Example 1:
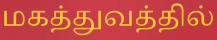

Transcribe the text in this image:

மகத்துவத்தில்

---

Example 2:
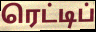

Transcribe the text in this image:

ரெட்டிப்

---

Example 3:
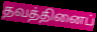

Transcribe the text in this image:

தவத்தினைப்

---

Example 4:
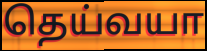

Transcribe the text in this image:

தெய்வயா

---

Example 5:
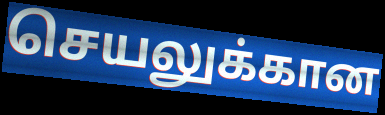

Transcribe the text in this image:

செயலுக்கான